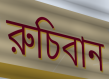
রুচিবান